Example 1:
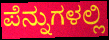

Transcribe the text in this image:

ಪೆನ್ನುಗಳಲ್ಲಿ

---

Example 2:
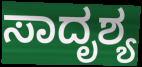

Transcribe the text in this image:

ಸಾದೃಶ್ಯ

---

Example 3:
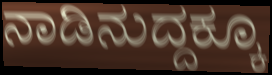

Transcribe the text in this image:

ನಾಡಿನುದ್ದಕ್ಕೂ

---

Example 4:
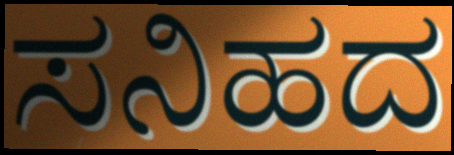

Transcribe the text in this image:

ಸನಿಹದ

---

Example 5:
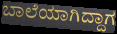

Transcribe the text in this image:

ಬಾಲೆಯಾಗಿದ್ದಾಗ